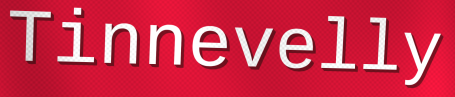
Tinnevelly